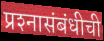
प्रश्नासंबंधीची